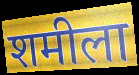
शमीला